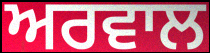
ਅਰਵਾਲ